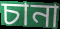
চানা